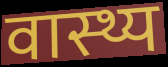
वास्थ्य